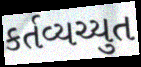
કર્તવ્યચ્યુત